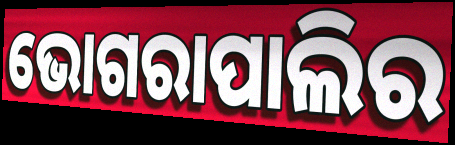
ଭୋଗରାପାଲିର